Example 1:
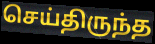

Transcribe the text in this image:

செய்திருந்த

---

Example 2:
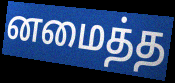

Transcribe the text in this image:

னமைத்த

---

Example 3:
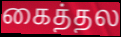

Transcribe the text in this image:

கைத்தல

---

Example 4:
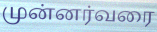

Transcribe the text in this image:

முன்னர்வரை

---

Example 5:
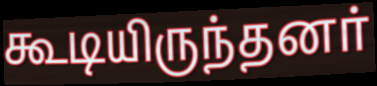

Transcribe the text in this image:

கூடியிருந்தனர்